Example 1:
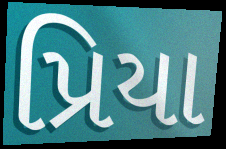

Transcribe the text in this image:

પ્રિયા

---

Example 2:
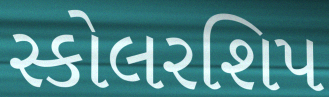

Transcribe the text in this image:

સ્કોલરશિપ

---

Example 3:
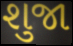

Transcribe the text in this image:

શુજા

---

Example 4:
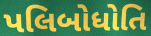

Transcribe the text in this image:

પલિબોધોતિ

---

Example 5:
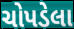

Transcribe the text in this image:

ચોપડેલા